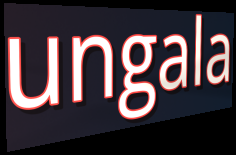
ungala